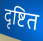
दृष्टित